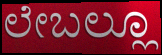
ಲೇಬಲ್ಲೂ